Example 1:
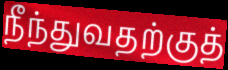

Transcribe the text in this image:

நீந்துவதற்குத்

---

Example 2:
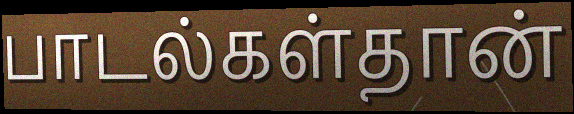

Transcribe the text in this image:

பாடல்கள்தான்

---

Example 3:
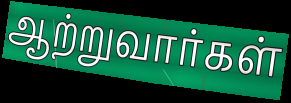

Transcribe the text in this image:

ஆற்றுவார்கள்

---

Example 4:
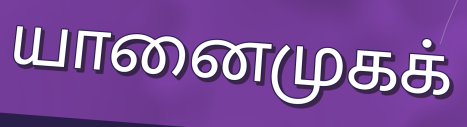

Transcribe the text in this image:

யானைமுகக்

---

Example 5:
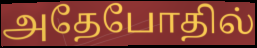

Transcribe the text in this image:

அதேபோதில்